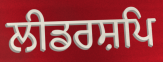
ਲੀਡਰਸ਼ਪਿ